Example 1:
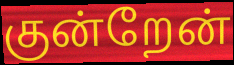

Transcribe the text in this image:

குன்றேன்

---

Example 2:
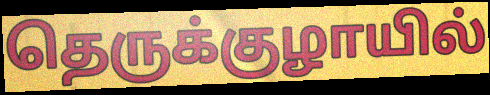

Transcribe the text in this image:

தெருக்குழாயில்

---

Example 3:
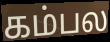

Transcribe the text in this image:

கம்பல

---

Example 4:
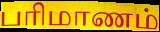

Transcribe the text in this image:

பரிமாணம்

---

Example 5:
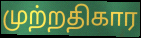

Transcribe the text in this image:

முற்றதிகார